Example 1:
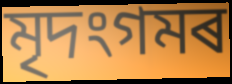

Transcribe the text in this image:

মৃদংগমৰ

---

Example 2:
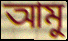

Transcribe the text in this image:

আমু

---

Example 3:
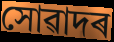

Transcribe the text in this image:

সোৱাদৰ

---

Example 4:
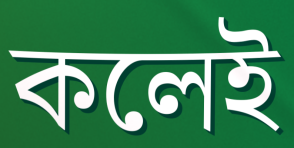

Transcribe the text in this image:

কলেই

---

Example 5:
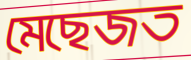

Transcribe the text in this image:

মেছেজত